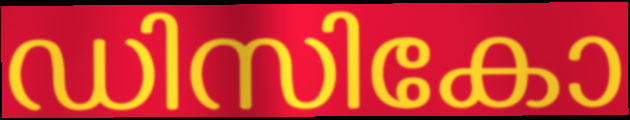
ഡിസികോ